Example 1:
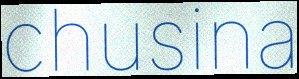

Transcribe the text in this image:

chusina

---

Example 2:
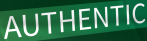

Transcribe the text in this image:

AUTHENTIC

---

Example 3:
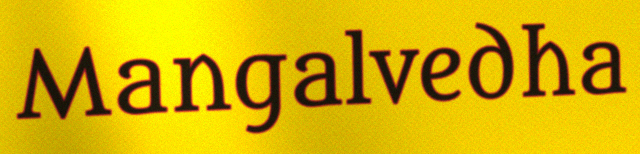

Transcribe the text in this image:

Mangalvedha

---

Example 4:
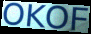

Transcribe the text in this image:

OKOF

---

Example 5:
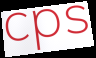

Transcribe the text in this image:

cps